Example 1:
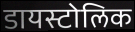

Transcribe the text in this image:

डायस्टोलिक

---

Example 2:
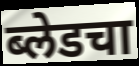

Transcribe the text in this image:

ब्लेडचा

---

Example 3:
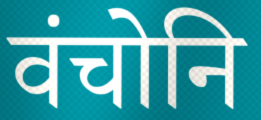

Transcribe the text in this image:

वंचोनि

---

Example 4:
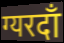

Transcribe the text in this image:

ग्यरदाँ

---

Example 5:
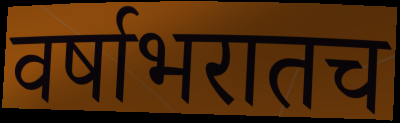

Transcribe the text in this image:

वर्षाभरातच